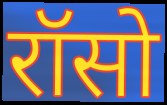
रॉसो